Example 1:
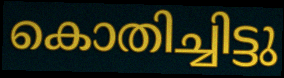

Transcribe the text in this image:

കൊതിച്ചിട്ടു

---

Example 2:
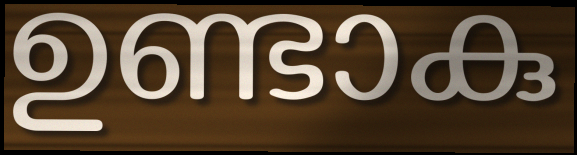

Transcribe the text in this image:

ഉണ്ടാകു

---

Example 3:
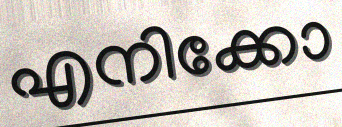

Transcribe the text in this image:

എനിക്കോ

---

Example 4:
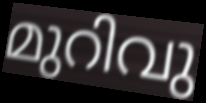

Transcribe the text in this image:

മുറിവു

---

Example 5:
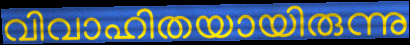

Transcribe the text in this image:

വിവാഹിതയായിരുന്നു